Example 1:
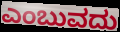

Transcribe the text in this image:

ಎಂಬುವದು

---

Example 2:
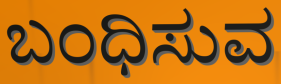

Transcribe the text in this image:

ಬಂಧಿಸುವ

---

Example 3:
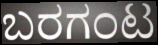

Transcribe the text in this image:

ಬರಗಂಟ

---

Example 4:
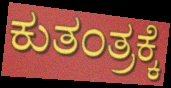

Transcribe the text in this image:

ಕುತಂತ್ರಕ್ಕೆ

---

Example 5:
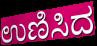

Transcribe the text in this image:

ಉಣಿಸಿದ